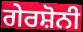
ਗੇਰਸ਼ੋਨੀ